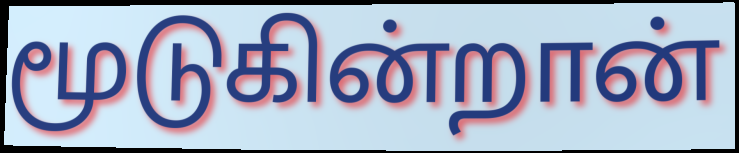
மூடுகின்றான்